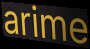
arime